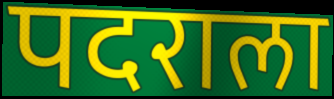
पदराला